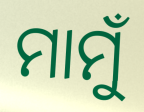
ମାମୁଁ